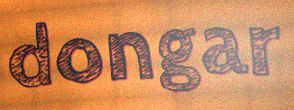
dongar